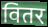
वितर